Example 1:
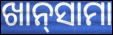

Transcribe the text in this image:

ଖାନ୍‌ସାମା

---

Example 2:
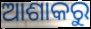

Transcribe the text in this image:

ଆଶାକରୁ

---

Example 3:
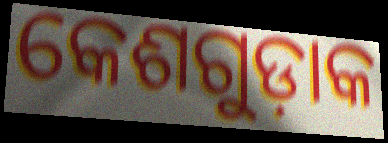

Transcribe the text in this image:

କେଶଗୁଡ଼ାକ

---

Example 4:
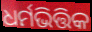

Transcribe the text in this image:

ଧର୍ମଭିତ୍ତିକ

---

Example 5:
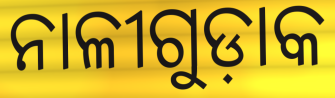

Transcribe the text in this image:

ନାଳୀଗୁଡ଼ାକ